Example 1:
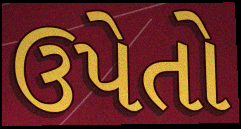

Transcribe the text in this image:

ઉપેતો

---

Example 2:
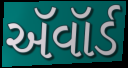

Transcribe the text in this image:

ઍવૉર્ડ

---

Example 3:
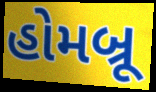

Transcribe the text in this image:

હોમબ્રૂ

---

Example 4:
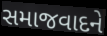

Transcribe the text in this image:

સમાજવાદને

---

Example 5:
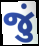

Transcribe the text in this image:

જું